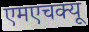
एमएचक्यू